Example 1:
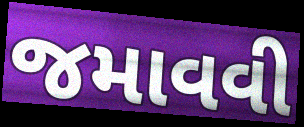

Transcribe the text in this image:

જમાવવી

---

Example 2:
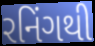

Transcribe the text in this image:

રનિંગથી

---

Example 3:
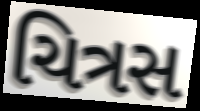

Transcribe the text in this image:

ચિત્રસ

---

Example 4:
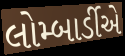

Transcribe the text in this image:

લોમ્બાર્ડીએ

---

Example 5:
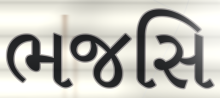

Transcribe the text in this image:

ભજસિ